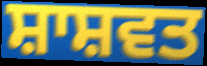
ਸ਼ਾਸ਼ਵਤ